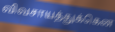
விவசாயத்துக்கென